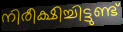
നിരീക്ഷിച്ചിട്ടുണ്ട്